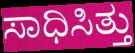
ಸಾಧಿಸಿತ್ತು